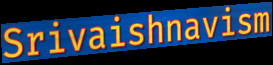
Srivaishnavism